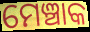
ମେଞ୍ଚାକ